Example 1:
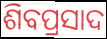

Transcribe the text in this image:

ଶିବପ୍ରସାଦ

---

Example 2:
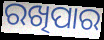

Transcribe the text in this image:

ରଖିପାର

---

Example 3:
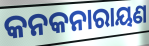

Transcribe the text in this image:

କନକନାରାୟଣ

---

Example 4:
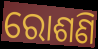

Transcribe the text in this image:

ରୋଶଣି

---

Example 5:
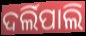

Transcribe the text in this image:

ଦର୍ଲିପାଲି